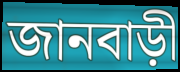
জানবাড়ী